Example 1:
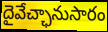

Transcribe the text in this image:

దైవేచ్ఛానుసారం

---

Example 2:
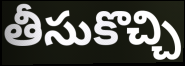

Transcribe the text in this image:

తీసుకొచ్చి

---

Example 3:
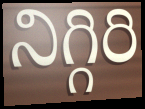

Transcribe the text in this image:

నిగ్గిరి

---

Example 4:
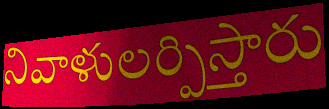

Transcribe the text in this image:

నివాళులర్పిస్తారు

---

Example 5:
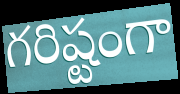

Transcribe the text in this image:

గరిష్టంగా